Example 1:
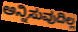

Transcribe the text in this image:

ಅನ್ನಿಸುವುದಿಲ್ಲ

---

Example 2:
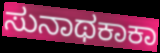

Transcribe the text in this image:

ಸುನಾಥಕಾಕಾ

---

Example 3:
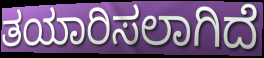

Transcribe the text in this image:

ತಯಾರಿಸಲಾಗಿದೆ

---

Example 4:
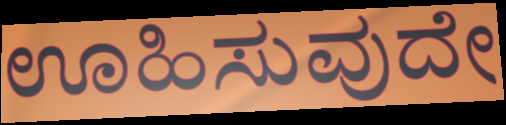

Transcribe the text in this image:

ಊಹಿಸುವುದೇ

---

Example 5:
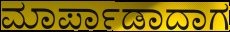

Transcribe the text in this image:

ಮಾರ್ಪಾಡಾದಾಗ